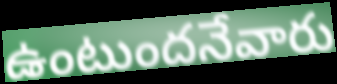
ఉంటుందనేవారు